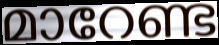
മാറേണ്ട